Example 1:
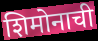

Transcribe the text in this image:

शिमोनाची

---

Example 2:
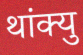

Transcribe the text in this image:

थांक्यु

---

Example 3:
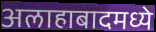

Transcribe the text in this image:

अलाहाबादमध्ये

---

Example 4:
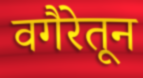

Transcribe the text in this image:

वगैरेतून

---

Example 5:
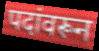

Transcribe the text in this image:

पदांवरून